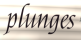
plunges